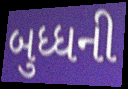
બુધ્ધની